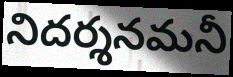
నిదర్శనమనీ